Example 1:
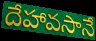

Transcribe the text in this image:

దేహావసానే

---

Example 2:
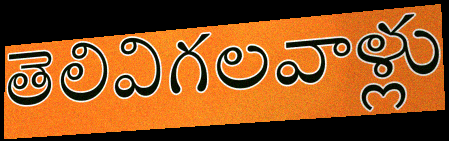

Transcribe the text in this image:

తెలివిగలవాళ్లు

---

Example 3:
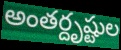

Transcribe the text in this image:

అంతర్దృష్టుల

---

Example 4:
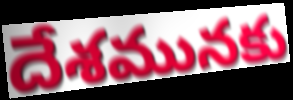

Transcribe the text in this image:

దేశమునకు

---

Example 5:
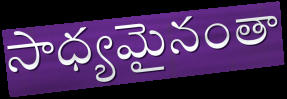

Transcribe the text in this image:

సాధ్యమైనంతా